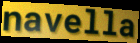
navella